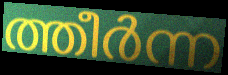
ത്തീർന്ന